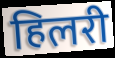
हिलरी